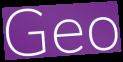
Geo